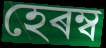
হেৰম্ব